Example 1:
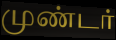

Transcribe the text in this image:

முண்டர்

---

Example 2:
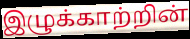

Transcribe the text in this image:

இழுக்காற்றின்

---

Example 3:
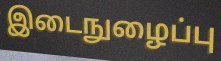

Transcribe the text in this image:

இடைநுழைப்பு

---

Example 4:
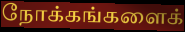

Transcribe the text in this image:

நோக்கங்களைக்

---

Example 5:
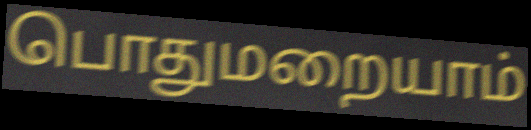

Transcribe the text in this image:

பொதுமறையாம்